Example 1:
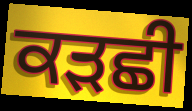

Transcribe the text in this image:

ਕੜਛੀ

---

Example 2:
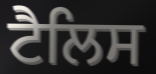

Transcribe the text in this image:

ਟੈਲਿਸ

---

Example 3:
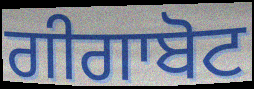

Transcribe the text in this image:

ਗੀਗਾਬੋਟ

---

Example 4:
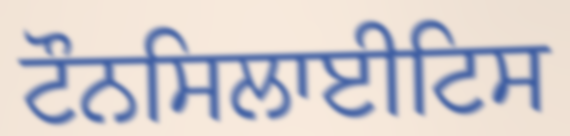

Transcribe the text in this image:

ਟੌਨਸਿਲਾਈਟਿਸ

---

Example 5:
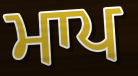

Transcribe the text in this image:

ਮਾਪ